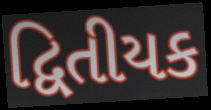
દ્વિતીયક